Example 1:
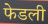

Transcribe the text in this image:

फेडली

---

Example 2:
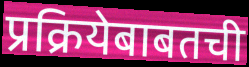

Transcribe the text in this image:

प्रक्रियेबाबतची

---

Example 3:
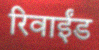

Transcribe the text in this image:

रिवाईंड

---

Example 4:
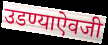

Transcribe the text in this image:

उडण्याऐवजी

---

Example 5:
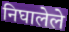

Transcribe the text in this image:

निघालेले